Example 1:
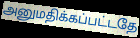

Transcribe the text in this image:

அனுமதிக்கப்பட்டதே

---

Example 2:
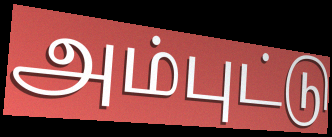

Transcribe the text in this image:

அம்புட்டு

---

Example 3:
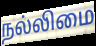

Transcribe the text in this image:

நல்லிமை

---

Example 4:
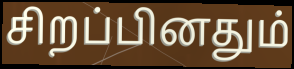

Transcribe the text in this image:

சிறப்பினதும்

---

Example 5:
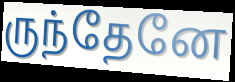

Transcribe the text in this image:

ருந்தேனே